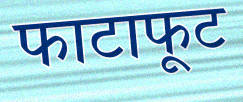
फाटाफूट